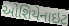
ઓશિયેનાઇટ